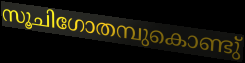
സൂചിഗോതമ്പുകൊണ്ടു്